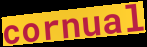
cornual